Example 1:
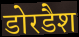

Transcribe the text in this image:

डोरडैश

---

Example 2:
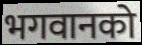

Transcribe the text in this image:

भगवानको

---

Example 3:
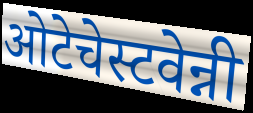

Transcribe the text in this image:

ओटेचेस्टवेन्नी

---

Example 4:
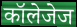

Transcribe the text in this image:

कॉलेजेज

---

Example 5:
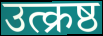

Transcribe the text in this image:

उत्क्रष्ठ